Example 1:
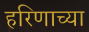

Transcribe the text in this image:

हरिणाच्या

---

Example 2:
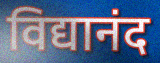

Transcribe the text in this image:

विद्यानंद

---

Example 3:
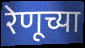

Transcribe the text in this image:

रेणूच्या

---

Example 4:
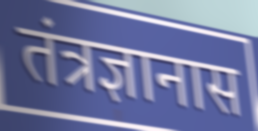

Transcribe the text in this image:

तंत्रज्ञानास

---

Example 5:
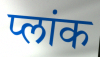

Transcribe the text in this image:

प्लांक